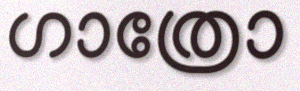
ഗാത്രോ